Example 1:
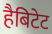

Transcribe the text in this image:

हैबिटेट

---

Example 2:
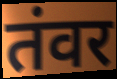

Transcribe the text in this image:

तंवर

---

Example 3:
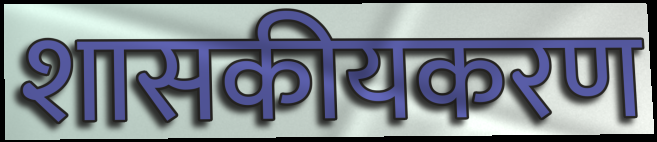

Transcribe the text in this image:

शासकीयकरण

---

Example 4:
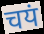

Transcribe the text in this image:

चयं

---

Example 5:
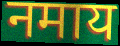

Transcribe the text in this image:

नमाय